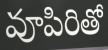
వూపిరితో